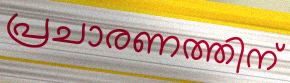
പ്രചാരണത്തിന്